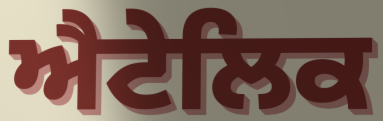
ਐਟੇਲਿਕ